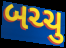
બચ્ચુ